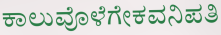
ಕಾಲುವೊಳೆಗೇಕವನಿಪತಿ